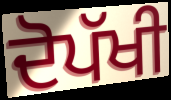
ਦੋਪੱਖੀ